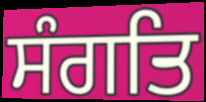
ਸੰਗਤਿ